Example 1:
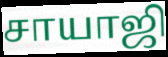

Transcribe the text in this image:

சாயாஜி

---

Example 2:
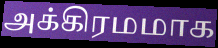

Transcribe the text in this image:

அக்கிரமமாக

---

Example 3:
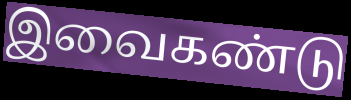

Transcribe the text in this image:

இவைகண்டு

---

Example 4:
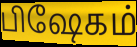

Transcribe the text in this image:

பிஷேகம்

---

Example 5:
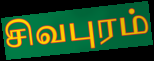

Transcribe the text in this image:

சிவபுரம்